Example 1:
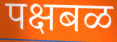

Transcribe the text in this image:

पक्षबळ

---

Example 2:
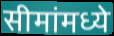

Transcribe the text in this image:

सीमांमध्ये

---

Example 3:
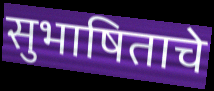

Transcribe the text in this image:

सुभाषिताचे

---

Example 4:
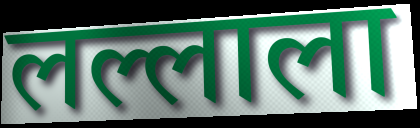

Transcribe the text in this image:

लल्लाला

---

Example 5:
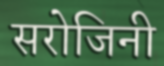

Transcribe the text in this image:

सरोजिनी